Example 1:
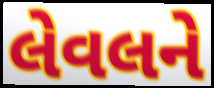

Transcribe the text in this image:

લેવલને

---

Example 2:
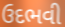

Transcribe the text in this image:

ઉદભવી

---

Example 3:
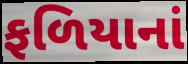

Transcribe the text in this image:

ફળિયાનાં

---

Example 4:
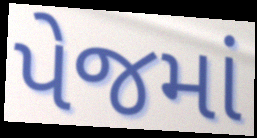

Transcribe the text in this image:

પેજમાં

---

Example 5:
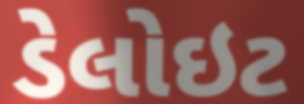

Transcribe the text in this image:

ડેલોઇટ